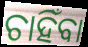
ଚାହିଁବା